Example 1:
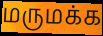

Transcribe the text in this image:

மருமக்க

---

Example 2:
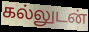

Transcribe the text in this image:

கல்லுடன்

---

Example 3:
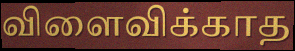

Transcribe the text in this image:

விளைவிக்காத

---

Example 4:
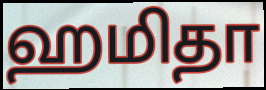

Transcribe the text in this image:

ஹமிதா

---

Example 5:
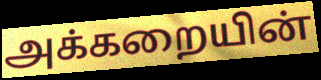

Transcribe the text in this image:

அக்கறையின்